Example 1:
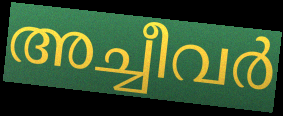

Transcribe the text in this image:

അച്ചീവർ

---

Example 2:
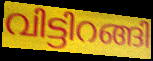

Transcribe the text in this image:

വിട്ടിറങ്ങി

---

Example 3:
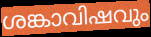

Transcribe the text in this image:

ശങ്കാവിഷവും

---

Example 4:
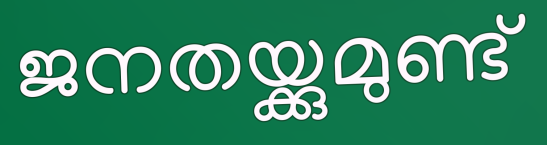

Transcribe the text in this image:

ജനതയ്ക്കുമുണ്ട്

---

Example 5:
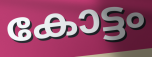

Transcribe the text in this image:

കോട്ടം